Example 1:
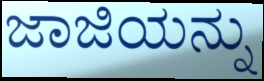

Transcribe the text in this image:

ಜಾಜಿಯನ್ನು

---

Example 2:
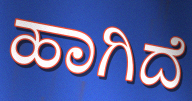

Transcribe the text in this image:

ಹಾಗಿದೆ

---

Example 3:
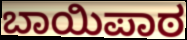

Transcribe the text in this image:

ಬಾಯಿಪಾಠ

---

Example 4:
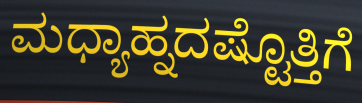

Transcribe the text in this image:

ಮಧ್ಯಾಹ್ನದಷ್ಟೊತ್ತಿಗೆ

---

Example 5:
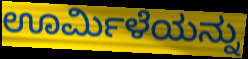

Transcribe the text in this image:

ಊರ್ಮಿಳೆಯನ್ನು